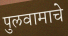
पुलवामाचे